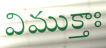
విముక్తాః